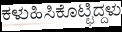
ಕಳುಹಿಸಿಕೊಟ್ಟಿದ್ದಳು